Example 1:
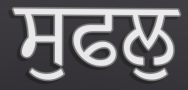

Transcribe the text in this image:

ਸੁਫਲੁ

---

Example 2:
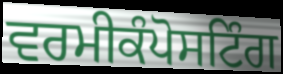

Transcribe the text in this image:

ਵਰਮੀਕੰਪੋਸਟਿੰਗ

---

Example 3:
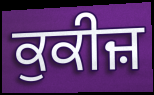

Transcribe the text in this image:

ਕੁਕੀਜ਼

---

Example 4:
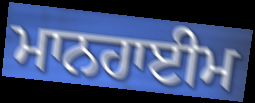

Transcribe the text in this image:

ਮਾਨਹਾਈਮ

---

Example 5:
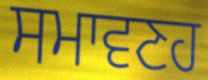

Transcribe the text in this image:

ਸਮਾਵਣਹ